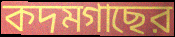
কদমগাছের